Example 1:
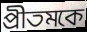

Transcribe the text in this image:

প্রীতমকে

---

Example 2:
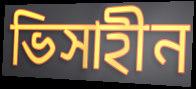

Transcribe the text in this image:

ভিসাহীন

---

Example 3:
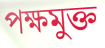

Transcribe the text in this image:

পক্ষমুক্ত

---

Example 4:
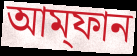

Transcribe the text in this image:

আম্‌ফান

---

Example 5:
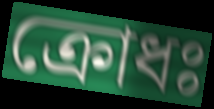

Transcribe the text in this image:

ক্রোধঃ